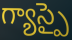
గ్యాస్పై